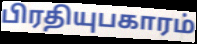
பிரதியுபகாரம்